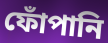
ফোঁপানি